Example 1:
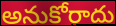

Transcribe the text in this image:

అనుకోరాదు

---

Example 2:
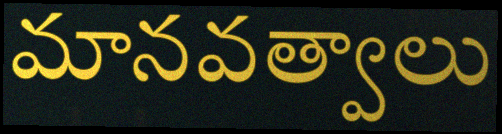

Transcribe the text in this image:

మానవత్వాలు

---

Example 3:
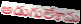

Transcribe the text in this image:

అడుగులేశాను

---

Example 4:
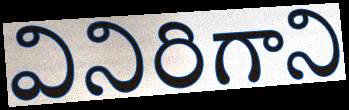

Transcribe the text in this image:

వినిరిగాని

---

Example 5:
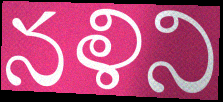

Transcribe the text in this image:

నళిని